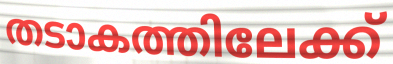
തടാകത്തിലേക്ക്